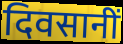
दिवसानीं